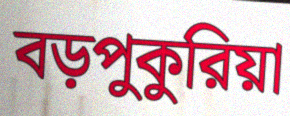
বড়পুকুরিয়া